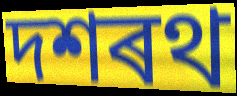
দশৰথ